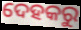
ଦେହକରୁ